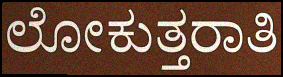
ಲೋಕುತ್ತರಾತಿ